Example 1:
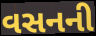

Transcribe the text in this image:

વસનની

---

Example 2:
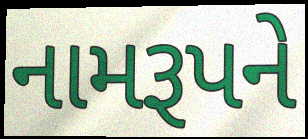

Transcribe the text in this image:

નામરૂપને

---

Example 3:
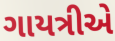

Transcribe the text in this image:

ગાયત્રીએ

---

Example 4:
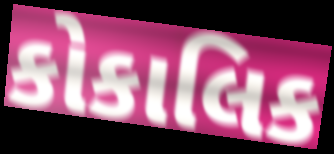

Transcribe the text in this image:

કોકાલિક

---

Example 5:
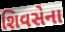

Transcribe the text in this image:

શિવસેના